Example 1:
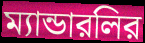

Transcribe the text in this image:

ম্যান্ডারলির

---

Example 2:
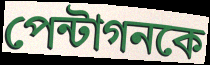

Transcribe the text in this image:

পেন্টাগনকে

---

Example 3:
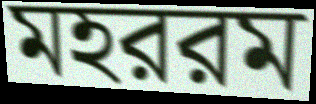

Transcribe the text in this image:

মহররম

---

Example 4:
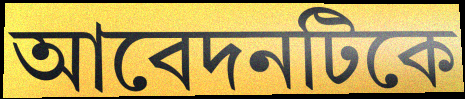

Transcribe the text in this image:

আবেদনটিকে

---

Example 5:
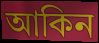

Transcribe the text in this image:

আকিন